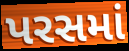
પરસમાં